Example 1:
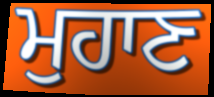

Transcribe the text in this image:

ਮੁਹਾਣ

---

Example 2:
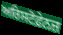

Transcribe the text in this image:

ਅਰਿਸਟੋਫ਼ੇਨਜ਼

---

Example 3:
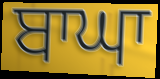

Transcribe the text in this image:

ਬਾਘਾ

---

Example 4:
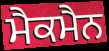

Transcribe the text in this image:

ਮੈਕਮੈਨ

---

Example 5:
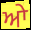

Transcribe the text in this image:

ਆੇ